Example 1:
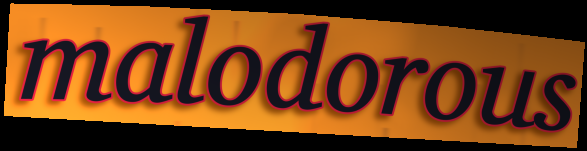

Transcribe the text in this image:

malodorous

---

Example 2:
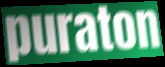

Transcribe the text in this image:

puraton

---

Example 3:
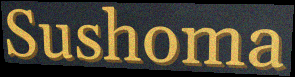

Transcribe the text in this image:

Sushoma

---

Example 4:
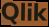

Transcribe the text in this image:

Qlik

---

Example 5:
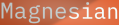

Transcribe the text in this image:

Magnesian